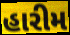
હારીમ